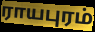
ராயபுரம்